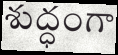
శుద్ధంగా